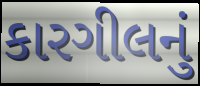
કારગીલનું